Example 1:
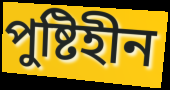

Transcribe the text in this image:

পুষ্টিহীন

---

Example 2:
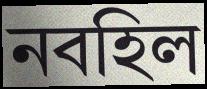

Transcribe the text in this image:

নবহিল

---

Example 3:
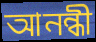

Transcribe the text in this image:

আনন্ধী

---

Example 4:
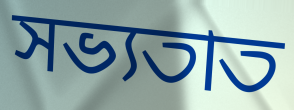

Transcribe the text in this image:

সভ্যতাত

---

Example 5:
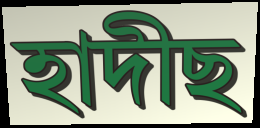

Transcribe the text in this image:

হাদীছ